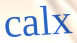
calx